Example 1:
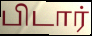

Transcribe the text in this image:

பிடார்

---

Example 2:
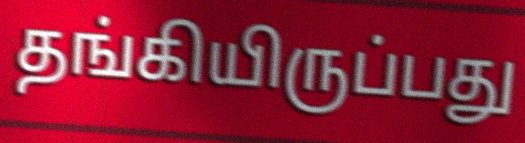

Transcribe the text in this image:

தங்கியிருப்பது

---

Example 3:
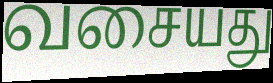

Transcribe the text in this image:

வசையது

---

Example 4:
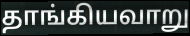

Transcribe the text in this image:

தாங்கியவாறு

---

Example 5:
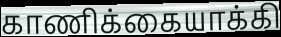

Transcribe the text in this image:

காணிக்கையாக்கி